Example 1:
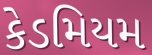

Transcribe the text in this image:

કેડમિયમ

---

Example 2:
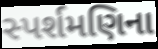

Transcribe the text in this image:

સ્પર્શમણિના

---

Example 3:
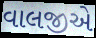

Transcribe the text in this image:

વાલજીએ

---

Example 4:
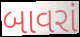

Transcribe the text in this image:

બાવરાં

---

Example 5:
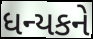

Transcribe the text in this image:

ધન્યકને